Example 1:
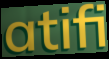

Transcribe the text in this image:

atifi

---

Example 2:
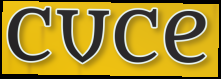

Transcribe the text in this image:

cuce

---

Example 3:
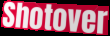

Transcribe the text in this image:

Shotover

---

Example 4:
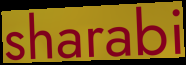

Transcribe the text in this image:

sharabi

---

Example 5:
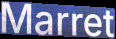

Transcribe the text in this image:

Marret